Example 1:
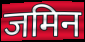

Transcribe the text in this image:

जमिन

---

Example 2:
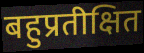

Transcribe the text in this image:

बहुप्रतीक्षित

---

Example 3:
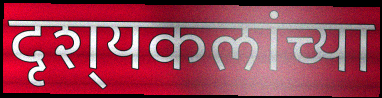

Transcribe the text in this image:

दृश्यकलांच्या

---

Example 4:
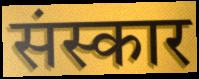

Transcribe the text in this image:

संस्‍कार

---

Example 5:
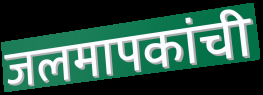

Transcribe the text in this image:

जलमापकांची